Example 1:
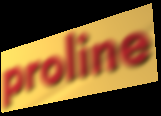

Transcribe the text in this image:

proline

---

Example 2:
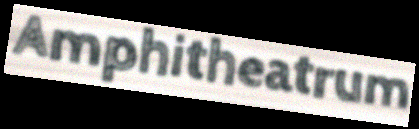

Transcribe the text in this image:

Amphitheatrum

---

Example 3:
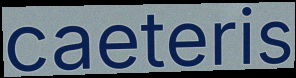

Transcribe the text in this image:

caeteris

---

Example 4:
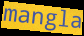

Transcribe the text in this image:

mangla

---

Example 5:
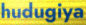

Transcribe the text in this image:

hudugiya